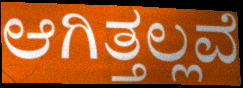
ಆಗಿತ್ತಲ್ಲವೆ